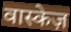
वास्केज़